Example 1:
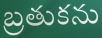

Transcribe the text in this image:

బ్రతుకను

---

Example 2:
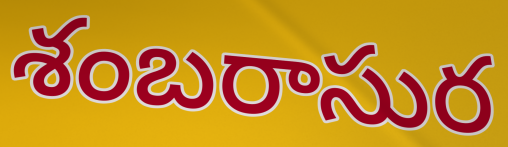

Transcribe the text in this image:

శంబరాసుర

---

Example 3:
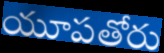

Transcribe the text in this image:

యూపతోరు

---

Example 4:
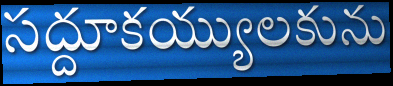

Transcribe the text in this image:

సద్దూకయ్యులకును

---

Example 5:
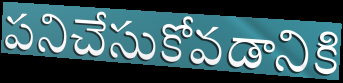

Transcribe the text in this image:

పనిచేసుకోవడానికి